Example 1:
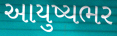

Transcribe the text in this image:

આયુષ્યભર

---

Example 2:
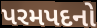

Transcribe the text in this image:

પરમપદનો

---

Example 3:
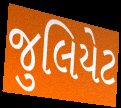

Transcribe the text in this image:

જુલિયેટ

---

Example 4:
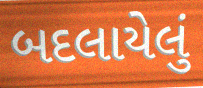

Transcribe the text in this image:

બદલાયેલું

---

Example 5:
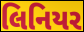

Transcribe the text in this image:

લિનિયર